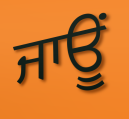
ਜਾਊਂ